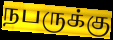
நபருக்கு